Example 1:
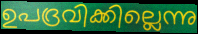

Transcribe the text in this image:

ഉപദ്രവിക്കില്ലെന്നു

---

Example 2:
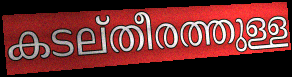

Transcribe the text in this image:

കടല്തീരത്തുള്ള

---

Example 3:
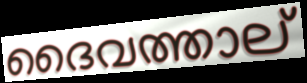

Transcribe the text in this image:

ദൈവത്താല്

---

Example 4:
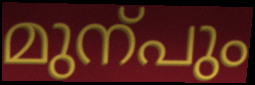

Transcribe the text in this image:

മുന്പും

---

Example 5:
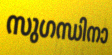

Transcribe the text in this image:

സുഗന്ധിനാ